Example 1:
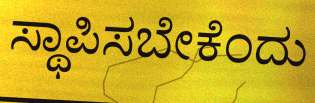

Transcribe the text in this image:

ಸ್ಥಾಪಿಸಬೇಕೆಂದು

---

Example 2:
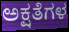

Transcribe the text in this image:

ಅಕ್ಷತೆಗಳ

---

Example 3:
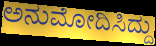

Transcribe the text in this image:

ಅನುಮೋದಿಸಿದ್ದು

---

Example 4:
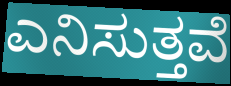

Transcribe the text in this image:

ಎನಿಸುತ್ತವೆ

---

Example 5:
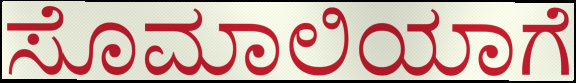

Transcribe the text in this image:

ಸೊಮಾಲಿಯಾಗೆ